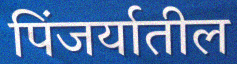
पिंजर्यातील